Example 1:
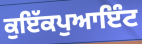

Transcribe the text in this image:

ਕੁਇੱਕਪੁਆਇੰਟ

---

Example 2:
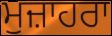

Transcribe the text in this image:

ਮੁਜ਼ਾਹਰਾ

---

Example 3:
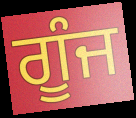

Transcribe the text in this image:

ਗੂੰਜ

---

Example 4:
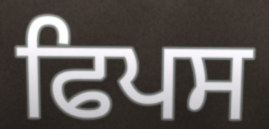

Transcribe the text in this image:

ਫਿਪਸ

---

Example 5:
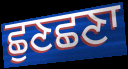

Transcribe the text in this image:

ਛੁਣਛਣਾ